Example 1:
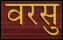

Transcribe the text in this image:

वरसु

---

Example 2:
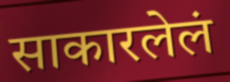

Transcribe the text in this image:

साकारलेलं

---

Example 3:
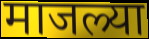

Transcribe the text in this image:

माजल्या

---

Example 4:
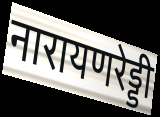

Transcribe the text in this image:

नारायणरेड्डी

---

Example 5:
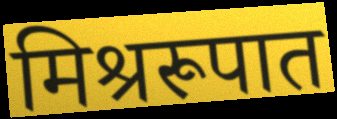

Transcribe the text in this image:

मिश्ररूपात